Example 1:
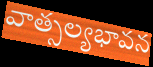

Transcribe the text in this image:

వాత్సల్యభావన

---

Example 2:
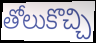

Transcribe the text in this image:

తోలుకొచ్చి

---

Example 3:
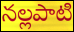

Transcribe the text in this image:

నల్లపాటి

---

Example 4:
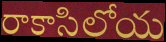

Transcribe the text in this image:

రాకాసిలోయ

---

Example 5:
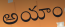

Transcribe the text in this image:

అయాం